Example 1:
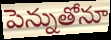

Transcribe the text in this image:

పెన్నుతోనూ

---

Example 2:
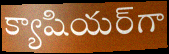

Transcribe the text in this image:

క్యాషియర్‌గా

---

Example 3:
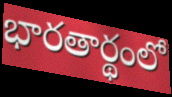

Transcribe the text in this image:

భారతార్థంలో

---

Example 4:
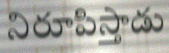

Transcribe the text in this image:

నిరూపిస్తాడు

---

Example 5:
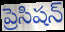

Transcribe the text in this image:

ప్రెసిషన్